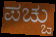
ಪಚ್ಚು